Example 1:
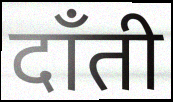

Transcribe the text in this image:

दाँती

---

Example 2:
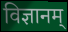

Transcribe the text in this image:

विज्ञानम्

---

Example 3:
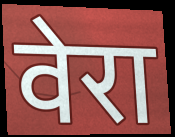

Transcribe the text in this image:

वेरा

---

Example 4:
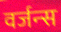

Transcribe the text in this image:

वर्जन्स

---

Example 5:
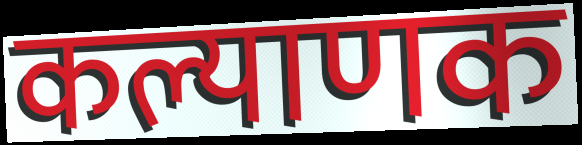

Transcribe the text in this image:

कल्याणक